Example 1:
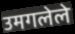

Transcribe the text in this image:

उमगलेले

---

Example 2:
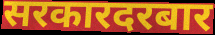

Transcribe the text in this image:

सरकारदरबार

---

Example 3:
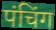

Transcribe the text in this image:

पंचिंग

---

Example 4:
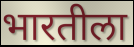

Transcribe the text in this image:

भारतीला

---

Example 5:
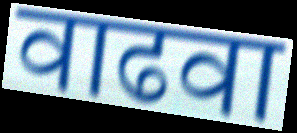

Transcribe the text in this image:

वाढवा